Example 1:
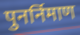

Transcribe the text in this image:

पुनर्निमाण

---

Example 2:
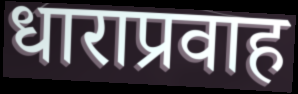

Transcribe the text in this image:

धाराप्रवाह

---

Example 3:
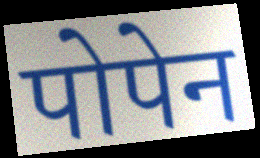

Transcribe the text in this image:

पोपेन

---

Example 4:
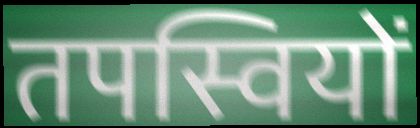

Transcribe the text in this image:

तपस्वियों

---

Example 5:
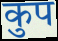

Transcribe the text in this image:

कुप